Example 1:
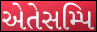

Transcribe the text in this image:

એતેસમ્પિ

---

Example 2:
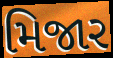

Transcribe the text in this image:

મિજાર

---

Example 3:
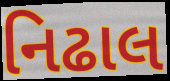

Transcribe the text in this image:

નિઢાલ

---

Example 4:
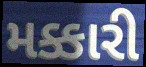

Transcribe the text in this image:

મક્કારી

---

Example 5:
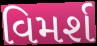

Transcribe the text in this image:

વિમર્શ